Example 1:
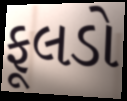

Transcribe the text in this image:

ફૂલડો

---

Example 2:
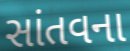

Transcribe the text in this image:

સાંતવના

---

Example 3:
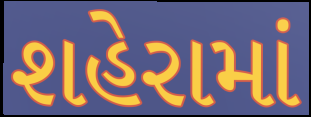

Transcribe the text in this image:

શહેરામાં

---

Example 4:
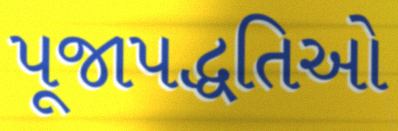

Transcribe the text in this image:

પૂજાપદ્ધતિઓ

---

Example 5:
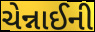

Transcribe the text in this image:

ચેન્નાઈની